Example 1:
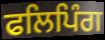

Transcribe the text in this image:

ਫਲਿਪਿੰਗ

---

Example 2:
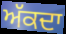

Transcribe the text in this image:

ਅੱਕਦਾ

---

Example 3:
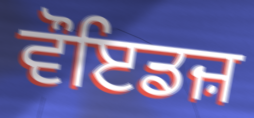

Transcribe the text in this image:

ਵੌਇਡਜ਼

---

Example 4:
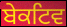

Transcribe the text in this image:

ਬੇਕਟਿਵ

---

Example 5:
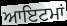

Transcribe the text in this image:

ਆਇਟਮਾਂ